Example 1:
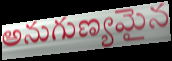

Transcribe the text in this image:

అనుగుణ్యమైన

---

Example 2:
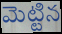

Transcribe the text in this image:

మెట్టిన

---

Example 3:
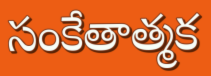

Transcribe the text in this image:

సంకేతాత్మక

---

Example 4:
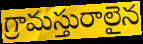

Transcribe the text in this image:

గ్రామస్తురాలైన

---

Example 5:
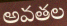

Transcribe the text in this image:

అవతల